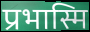
प्रभास्मि